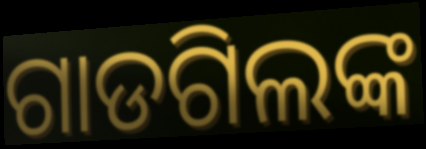
ଗାଡଗିଲଙ୍କ